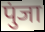
पुंजा